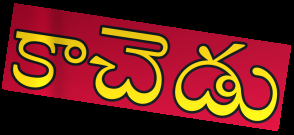
కాచెడు